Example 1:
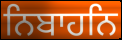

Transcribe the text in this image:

ਨਿਬਾਹਨਿ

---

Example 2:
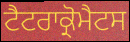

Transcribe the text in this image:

ਟੈਟਰਾਕ੍ਰੋਮੈਟਸ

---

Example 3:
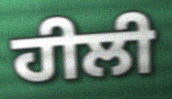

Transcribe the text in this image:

ਹੀਲੀ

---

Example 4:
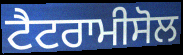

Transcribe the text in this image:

ਟੈਟਰਾਮੀਸੋਲ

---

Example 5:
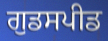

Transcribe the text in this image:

ਗੁਡਸਪੀਡ